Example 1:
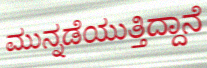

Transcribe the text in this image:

ಮುನ್ನಡೆಯುತ್ತಿದ್ದಾನೆ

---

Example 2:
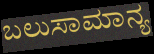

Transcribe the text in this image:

ಬಲುಸಾಮಾನ್ಯ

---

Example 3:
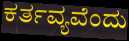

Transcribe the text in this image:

ಕರ್ತವ್ಯವೆಂದು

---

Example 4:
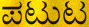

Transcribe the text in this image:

ಪಟುಟ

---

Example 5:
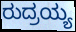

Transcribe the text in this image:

ರುದ್ರಯ್ಯ